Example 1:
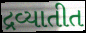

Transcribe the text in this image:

દ્રવ્યાતીત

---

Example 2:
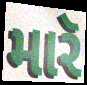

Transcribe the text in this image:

મારૅ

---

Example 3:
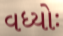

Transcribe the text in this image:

વધ્યોઃ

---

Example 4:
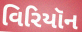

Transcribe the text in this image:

વિરિયૉન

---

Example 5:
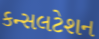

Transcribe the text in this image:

કન્સલટેશન